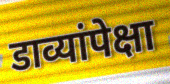
डाव्यांपेक्षा